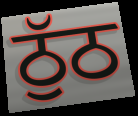
ਠੁੱਠ